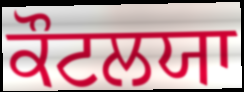
ਕੌਟਲਯਾ